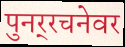
पुनर्रचनेवर